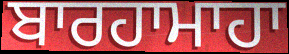
ਬਾਰਹਾਮਾਹਾ